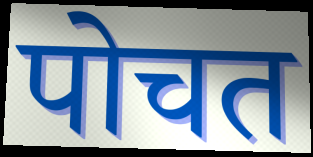
पोचत